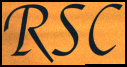
RSC